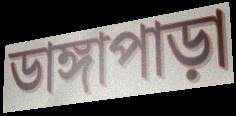
ডাঙ্গাপাড়া